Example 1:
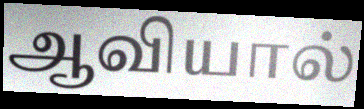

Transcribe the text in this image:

ஆவியால்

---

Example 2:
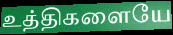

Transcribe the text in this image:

உத்திகளையே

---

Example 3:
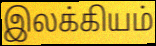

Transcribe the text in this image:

இலக்கியம்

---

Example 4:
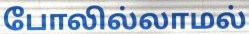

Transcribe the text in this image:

போலில்லாமல்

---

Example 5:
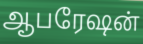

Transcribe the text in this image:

ஆபரேஷன்